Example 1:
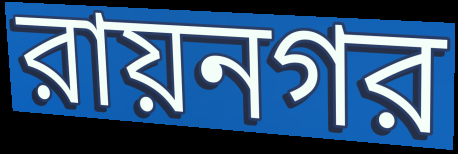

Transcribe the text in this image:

রায়নগর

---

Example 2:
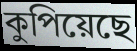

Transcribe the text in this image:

কুপিয়েছে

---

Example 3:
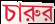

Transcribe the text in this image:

চারুর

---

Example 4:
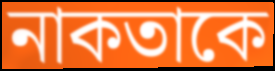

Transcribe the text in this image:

নাকতাকে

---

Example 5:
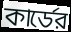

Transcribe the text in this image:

কার্ডের